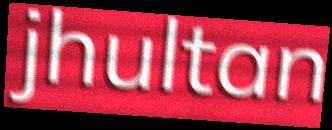
jhultan